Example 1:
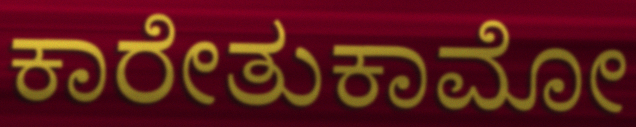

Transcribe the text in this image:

ಕಾರೇತುಕಾಮೋ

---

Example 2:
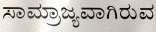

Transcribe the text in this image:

ಸಾಮ್ರಾಜ್ಯವಾಗಿರುವ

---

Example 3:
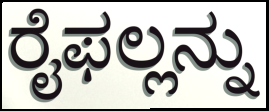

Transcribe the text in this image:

ರೈಫಲ್ಲನ್ನು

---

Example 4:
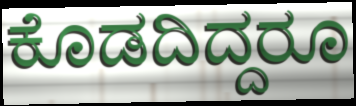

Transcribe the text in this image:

ಕೊಡದಿದ್ದರೂ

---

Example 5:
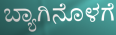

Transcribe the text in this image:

ಬ್ಯಾಗಿನೊಳಗೆ